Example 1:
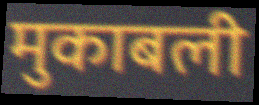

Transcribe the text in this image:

मुकाबली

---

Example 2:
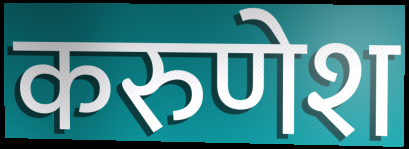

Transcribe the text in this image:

करुणेश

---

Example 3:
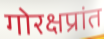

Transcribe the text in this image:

गोरक्षप्रांत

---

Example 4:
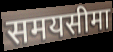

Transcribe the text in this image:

समयसीमा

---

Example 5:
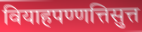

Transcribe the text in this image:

वियाहपण्णत्तिसुत्त